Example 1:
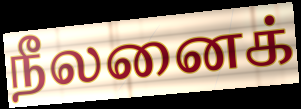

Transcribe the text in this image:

நீலனைக்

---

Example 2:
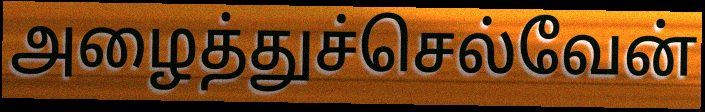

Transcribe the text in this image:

அழைத்துச்செல்வேன்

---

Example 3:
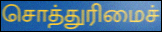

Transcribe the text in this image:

சொத்துரிமைச்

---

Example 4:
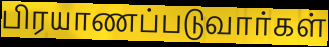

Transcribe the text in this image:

பிரயாணப்படுவார்கள்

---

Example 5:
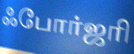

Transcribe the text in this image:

ஃபோர்ஜரி